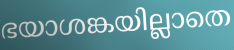
ഭയാശങ്കയില്ലാതെ